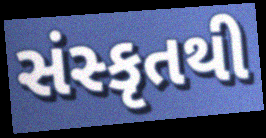
સંસ્કૃતથી